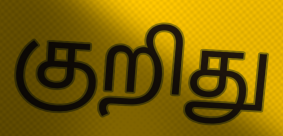
குறிது